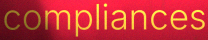
compliances